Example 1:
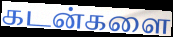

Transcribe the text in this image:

கடன்களை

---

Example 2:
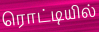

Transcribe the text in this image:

ரொட்டியில்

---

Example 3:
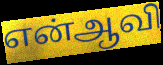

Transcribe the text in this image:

என்ஆவி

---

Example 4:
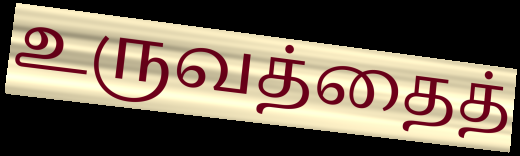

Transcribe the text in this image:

உருவத்தைத்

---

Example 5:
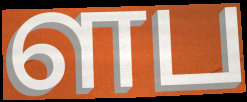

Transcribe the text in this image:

ளப